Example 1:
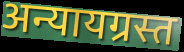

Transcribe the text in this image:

अन्यायग्रस्त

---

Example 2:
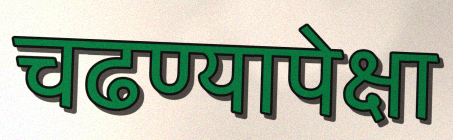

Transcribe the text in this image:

चढण्यापेक्षा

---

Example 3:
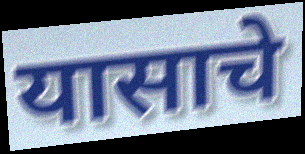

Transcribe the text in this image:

यासाचे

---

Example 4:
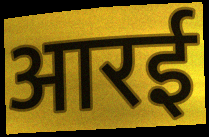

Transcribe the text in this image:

आरई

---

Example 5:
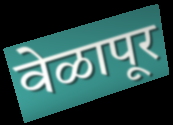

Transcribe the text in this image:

वेळापूर